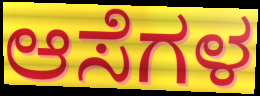
ಆಸೆಗಳ